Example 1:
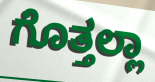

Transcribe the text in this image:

ಗೊತ್ತಲ್ಲಾ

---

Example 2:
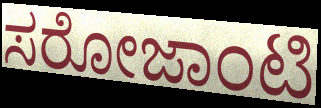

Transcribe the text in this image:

ಸರೋಜಾಂಟಿ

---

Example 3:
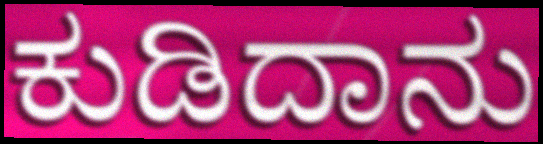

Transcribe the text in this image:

ಕುಡಿದಾನು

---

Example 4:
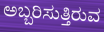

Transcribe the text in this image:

ಅಬ್ಬರಿಸುತ್ತಿರುವ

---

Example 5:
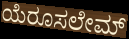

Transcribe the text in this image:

ಯೆರೂಸಲೇಮ್